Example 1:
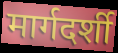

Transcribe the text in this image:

मार्गदर्शी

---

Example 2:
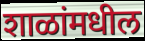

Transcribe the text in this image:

शाळांमधील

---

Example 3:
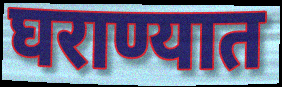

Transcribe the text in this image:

घराण्यात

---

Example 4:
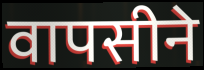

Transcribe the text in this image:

वापसीने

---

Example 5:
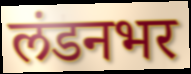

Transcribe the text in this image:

लंडनभर